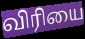
விரியை